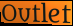
Outlet